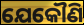
ଯେକୌଣି